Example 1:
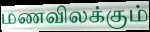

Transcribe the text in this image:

மணவிலக்கும்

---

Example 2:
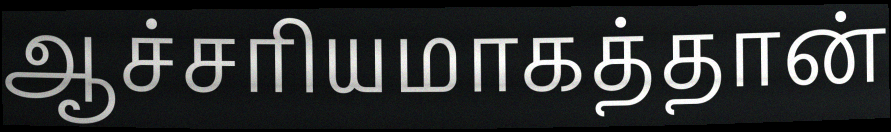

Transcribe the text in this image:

ஆச்சரியமாகத்தான்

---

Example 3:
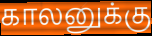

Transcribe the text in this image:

காலனுக்கு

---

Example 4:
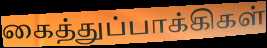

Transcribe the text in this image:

கைத்துப்பாக்கிகள்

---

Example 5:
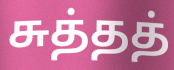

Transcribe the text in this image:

சுத்தத்